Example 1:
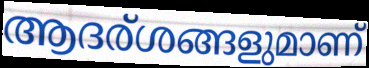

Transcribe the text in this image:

ആദര്ശങ്ങളുമാണ്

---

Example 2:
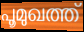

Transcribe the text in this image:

പൂമുഖത്ത്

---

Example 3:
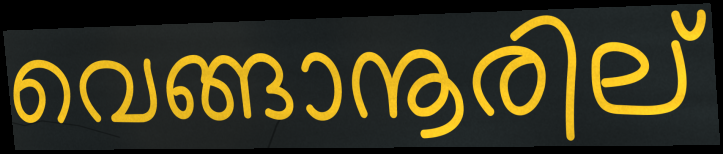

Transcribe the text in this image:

വെങ്ങാനൂരില്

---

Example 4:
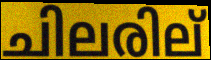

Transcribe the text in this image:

ചിലരില്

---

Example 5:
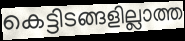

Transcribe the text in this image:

കെട്ടിടങ്ങളില്ലാത്ത